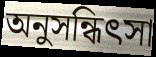
অনুসন্ধিৎসা